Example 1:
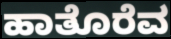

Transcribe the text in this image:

ಹಾತೊರೆವ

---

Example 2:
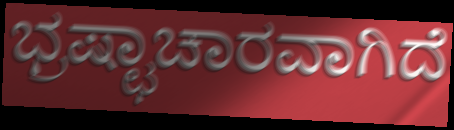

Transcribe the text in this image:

ಭ್ರಷ್ಟಾಚಾರವಾಗಿದೆ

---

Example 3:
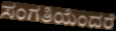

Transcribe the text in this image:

ಸಂಗತಿಯೆಂದರೆ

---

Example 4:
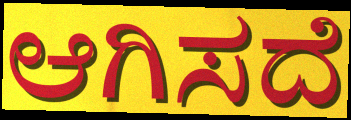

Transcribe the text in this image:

ಆಗಿಸದೆ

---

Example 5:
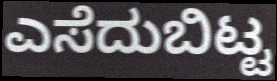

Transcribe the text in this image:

ಎಸೆದುಬಿಟ್ಟ